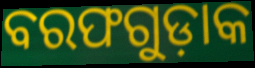
ବରଫଗୁଡ଼ାକ